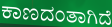
ಕಾಣದಂತಾಗಿದೆ